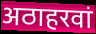
अठाहरवां